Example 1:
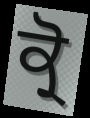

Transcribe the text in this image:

ਕ੍ਰੋ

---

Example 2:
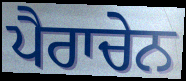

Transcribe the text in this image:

ਪੈਰਾਚੇਨ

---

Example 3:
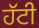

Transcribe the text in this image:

ਹੱਟੀ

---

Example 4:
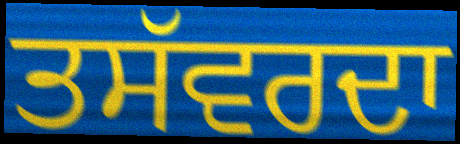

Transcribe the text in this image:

ਤਸੱਵਰਦਾ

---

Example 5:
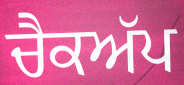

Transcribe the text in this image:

ਚੈਕਅੱਪ